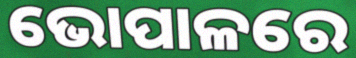
ଭୋପାଳରେ